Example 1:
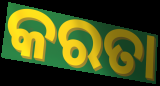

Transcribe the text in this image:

କରତା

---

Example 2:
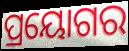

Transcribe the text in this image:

ପ୍ରୟୋଗର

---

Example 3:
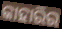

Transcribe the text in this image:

କାହାରିର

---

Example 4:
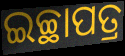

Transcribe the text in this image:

ଇଚ୍ଛାପତ୍ର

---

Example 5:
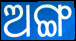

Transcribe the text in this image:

ଅଙ୍ଗ